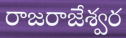
రాజరాజేశ్వర